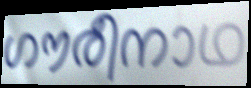
ഗൗരീനാഥ